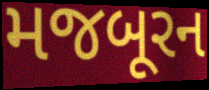
મજબૂરન